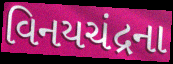
વિનયચંદ્રના